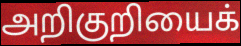
அறிகுறியைக்